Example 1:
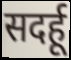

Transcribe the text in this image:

सदर्हू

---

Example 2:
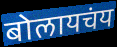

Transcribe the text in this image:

बोलायचंय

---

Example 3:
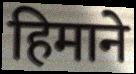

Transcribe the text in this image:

हिमाने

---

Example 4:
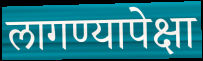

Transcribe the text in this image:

लागण्यापेक्षा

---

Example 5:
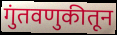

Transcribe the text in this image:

गुंतवणुकीतून